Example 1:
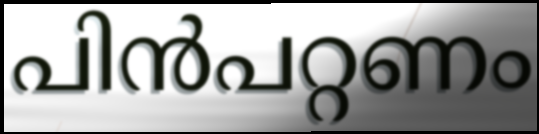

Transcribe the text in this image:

പിൻപറ്റണം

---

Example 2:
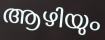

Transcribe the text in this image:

ആഴിയും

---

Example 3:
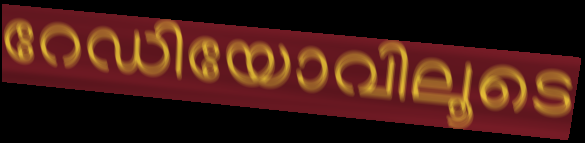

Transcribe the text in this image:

റേഡിയോവിലൂടെ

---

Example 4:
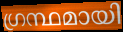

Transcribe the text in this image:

ഗ്രന്ഥമായി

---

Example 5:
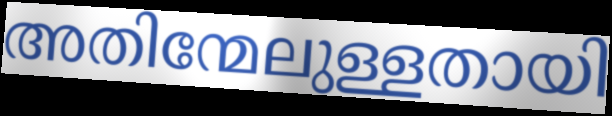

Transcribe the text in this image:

അതിന്മേലുള്ളതായി